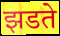
झडते